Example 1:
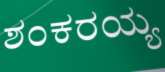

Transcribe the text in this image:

ಶಂಕರಯ್ಯ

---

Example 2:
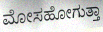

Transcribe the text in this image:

ಮೋಸಹೋಗುತ್ತಾ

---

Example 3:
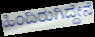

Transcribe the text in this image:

ಹಿಂದಿರುಗಿದ್ದೇನೆ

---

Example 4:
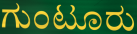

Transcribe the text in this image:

ಗುಂಟೂರು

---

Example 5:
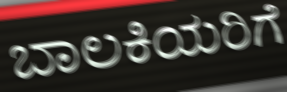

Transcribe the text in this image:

ಬಾಲಕಿಯರಿಗೆ